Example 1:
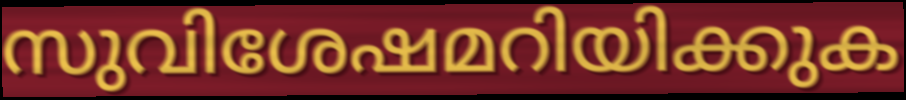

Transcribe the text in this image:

സുവിശേഷമറിയിക്കുക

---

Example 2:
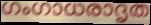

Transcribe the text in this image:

ഗംഗാധരാദൃത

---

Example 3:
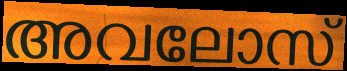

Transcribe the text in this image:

അവലോസ്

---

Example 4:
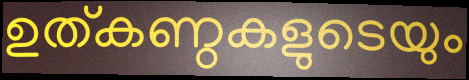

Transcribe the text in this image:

ഉത്കണ്ഠകളുടെയും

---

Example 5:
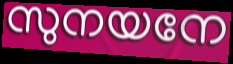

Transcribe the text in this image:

സുനയനേ